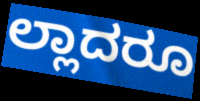
ಲ್ಲಾದರೂ